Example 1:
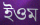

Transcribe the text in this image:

ইওম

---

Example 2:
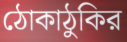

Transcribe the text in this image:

ঠোকাঠুকির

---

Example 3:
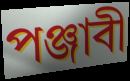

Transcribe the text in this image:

পঞ্জাবী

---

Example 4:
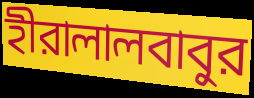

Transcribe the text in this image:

হীরালালবাবুর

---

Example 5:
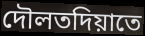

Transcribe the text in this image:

দৌলতদিয়াতে